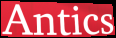
Antics